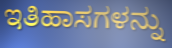
ಇತಿಹಾಸಗಳನ್ನು